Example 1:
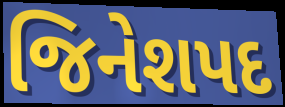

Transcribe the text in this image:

જિનેશપદ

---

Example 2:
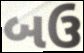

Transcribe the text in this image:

બઉ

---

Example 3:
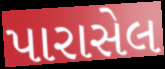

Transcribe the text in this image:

પારાસેલ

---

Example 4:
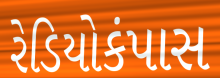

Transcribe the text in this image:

રેડિયોકંપાસ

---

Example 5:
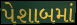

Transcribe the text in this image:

પેશાબમાં